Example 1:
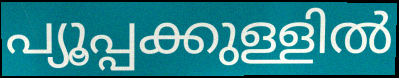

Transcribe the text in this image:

പ്യൂപ്പക്കുള്ളിൽ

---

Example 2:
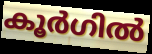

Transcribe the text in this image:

കൂർഗിൽ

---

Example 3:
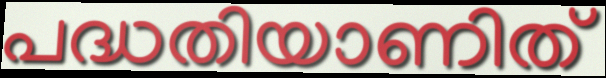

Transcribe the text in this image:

പദ്ധതിയാണിത്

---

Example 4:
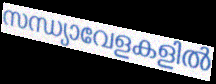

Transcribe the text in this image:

സന്ധ്യാവേളകളിൽ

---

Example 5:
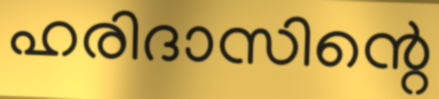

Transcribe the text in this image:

ഹരിദാസിന്റെ